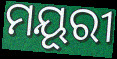
ମୟୂରୀ